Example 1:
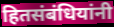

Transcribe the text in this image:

हितसंबंधियांनी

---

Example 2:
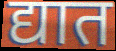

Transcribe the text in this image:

द्यात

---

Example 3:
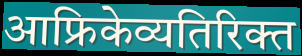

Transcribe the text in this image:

आफ्रिकेव्यतिरिक्त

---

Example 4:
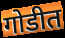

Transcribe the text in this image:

गोडीत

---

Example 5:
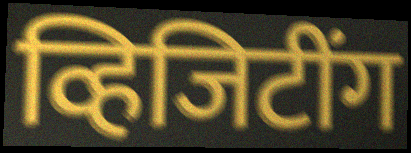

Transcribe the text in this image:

व्हिजिटींग